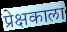
प्रेक्षकाला